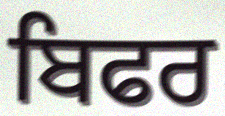
ਬਿਫਰ